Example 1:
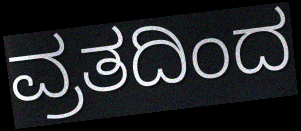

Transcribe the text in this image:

ವ್ರತದಿಂದ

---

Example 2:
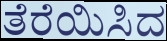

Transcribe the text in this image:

ತೆರೆಯಿಸಿದ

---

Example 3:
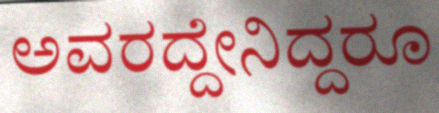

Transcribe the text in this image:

ಅವರದ್ದೇನಿದ್ದರೂ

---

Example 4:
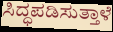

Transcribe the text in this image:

ಸಿದ್ಧಪಡಿಸುತ್ತಾಳೆ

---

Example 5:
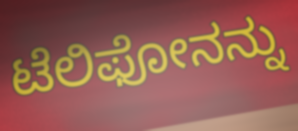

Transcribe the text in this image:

ಟೆಲಿಫೋನನ್ನು